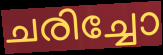
ചരിച്ചോ